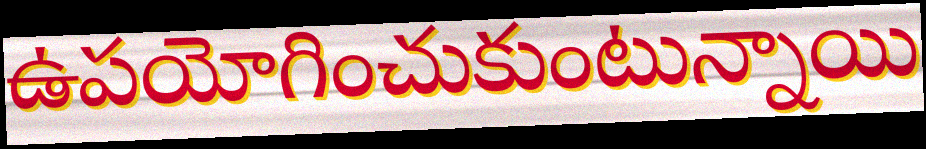
ఉపయోగించుకుంటున్నాయి